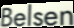
Belsen